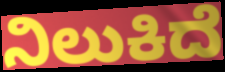
ನಿಲುಕಿದೆ